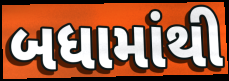
બધામાંથી